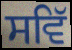
ਸਵਿੱ